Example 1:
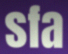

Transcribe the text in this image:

sfa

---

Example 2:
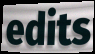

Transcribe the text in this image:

edits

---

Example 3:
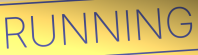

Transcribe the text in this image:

RUNNING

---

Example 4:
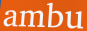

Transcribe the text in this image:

ambu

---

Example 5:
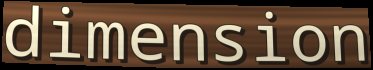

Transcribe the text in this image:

dimension